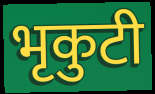
भृकुटी